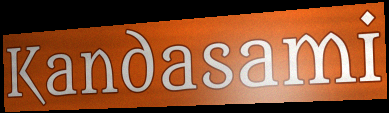
Kandasami